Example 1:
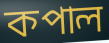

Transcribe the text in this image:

কপাল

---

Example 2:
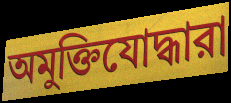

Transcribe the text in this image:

অমুক্তিযোদ্ধারা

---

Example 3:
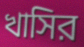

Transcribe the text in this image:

খাসির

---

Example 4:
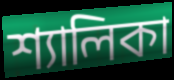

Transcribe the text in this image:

শ্যালিকা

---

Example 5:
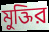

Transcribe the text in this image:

মুক্তির